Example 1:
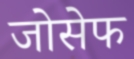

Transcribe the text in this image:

जोसेफ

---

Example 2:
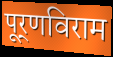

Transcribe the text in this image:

पूर्णविराम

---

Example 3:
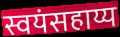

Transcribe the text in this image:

स्वयंसहाय्य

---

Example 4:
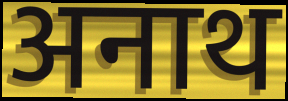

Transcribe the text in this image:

अनाथ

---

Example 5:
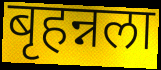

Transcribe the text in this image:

बृहन्नला